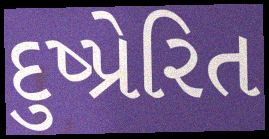
દુષ્પ્રેરિત